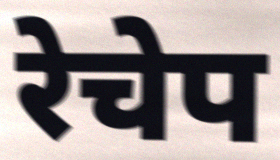
रेचेप